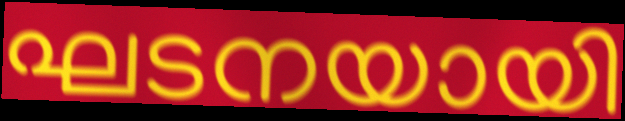
ഘടനയായി